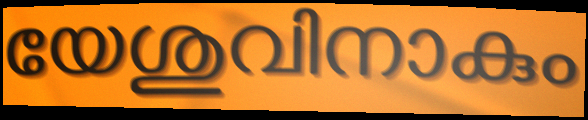
യേശുവിനാകും